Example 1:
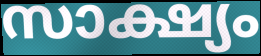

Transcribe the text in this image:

സാക്ഷ്യം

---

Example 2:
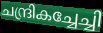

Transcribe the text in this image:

ചന്ദ്രികച്ചേച്ചി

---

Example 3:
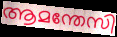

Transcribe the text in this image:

ആമന്തേസി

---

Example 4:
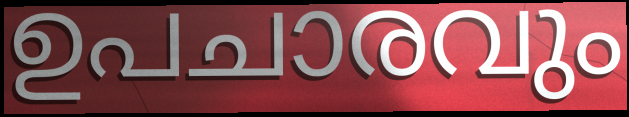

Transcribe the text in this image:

ഉപചാരവും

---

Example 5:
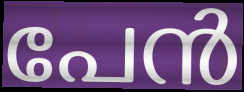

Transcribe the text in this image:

പേൻ